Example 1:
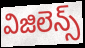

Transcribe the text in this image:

విజిలెన్స్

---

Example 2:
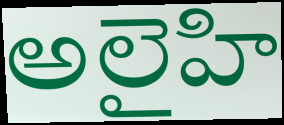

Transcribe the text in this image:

అలైహి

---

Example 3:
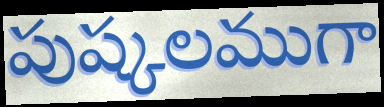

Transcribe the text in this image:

పుష్కలముగా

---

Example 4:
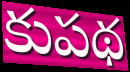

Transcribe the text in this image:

కుపథ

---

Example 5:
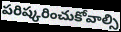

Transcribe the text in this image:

పరిష్కరించుకోవాల్సి